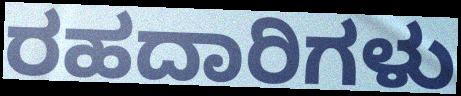
ರಹದಾರಿಗಳು